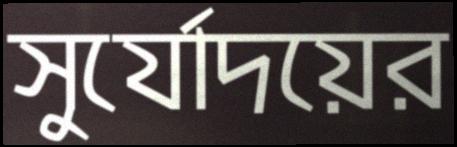
সুর্যোদয়ের